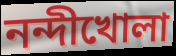
নন্দীখোলা